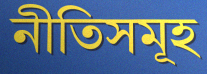
নীতিসমূহ